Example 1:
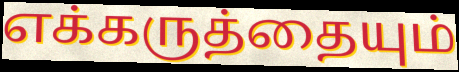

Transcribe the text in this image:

எக்கருத்தையும்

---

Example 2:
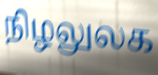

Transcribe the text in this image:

நிழலுலக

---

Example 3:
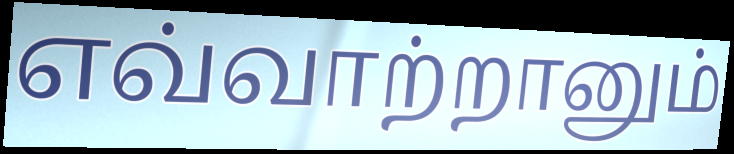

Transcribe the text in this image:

எவ்வாற்றானும்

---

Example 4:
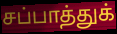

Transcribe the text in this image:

சப்பாத்துக்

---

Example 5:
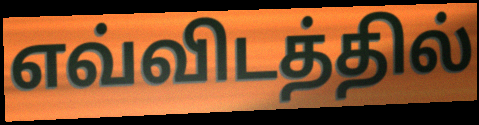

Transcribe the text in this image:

எவ்விடத்தில்